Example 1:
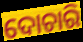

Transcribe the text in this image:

ଦୋଚାରି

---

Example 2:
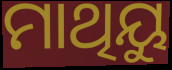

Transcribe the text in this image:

ମାଥିୟୁ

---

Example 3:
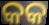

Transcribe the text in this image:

କକ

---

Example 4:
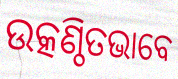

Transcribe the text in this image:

ଉତ୍କଣ୍ଠିତଭାବେ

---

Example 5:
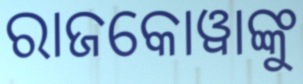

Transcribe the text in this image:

ରାଜକୋୱାଙ୍କୁ